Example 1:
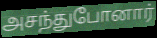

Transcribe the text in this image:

அசந்துபோனார்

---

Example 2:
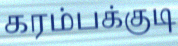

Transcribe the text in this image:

கரம்பக்குடி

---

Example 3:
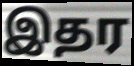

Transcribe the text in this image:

இதர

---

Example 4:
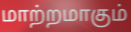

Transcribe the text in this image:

மாற்றமாகும்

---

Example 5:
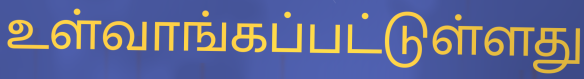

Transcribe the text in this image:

உள்வாங்கப்பட்டுள்ளது